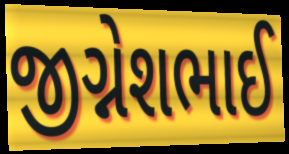
જીગ્નેશભાઈ